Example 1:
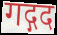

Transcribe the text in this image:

गद्गद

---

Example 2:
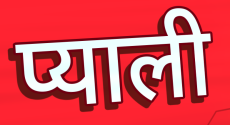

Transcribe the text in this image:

प्याली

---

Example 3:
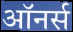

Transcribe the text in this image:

ऑनर्स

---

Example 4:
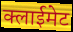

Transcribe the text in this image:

क्लाईमेट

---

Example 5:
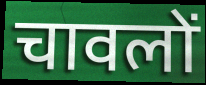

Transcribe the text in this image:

चावलों